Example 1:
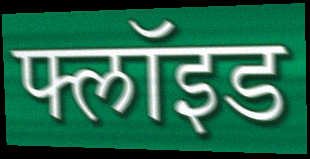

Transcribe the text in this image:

फ्लॉइड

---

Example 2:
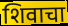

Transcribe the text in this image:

शिवाचा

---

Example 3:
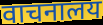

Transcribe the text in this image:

वाचनालय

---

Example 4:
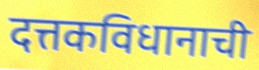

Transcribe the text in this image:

दत्तकविधानाची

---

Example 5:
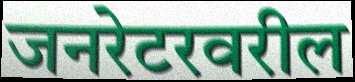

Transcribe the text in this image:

जनरेटरवरील